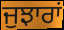
ਜੁਝਾਰਾਂ